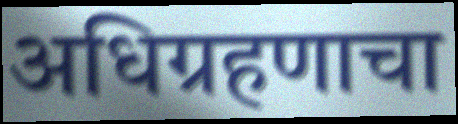
अधिग्रहणाचा